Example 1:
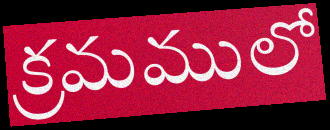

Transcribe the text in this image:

క్రమములో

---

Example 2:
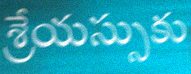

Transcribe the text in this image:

శ్రేయస్సుకు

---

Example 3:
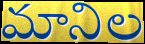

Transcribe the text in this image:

మానిల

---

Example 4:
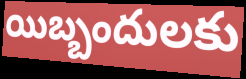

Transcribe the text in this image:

యిబ్బందులకు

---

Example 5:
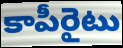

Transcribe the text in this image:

కాపీరైటు